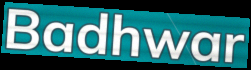
Badhwar